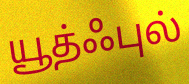
யூத்ஃபுல்